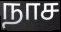
நாச